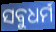
ସବୁଧର୍ମ